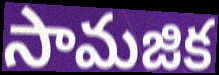
సామజిక